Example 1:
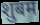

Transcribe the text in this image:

शुबम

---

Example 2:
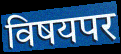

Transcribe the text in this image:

विषयपर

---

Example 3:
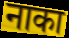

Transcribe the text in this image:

नाका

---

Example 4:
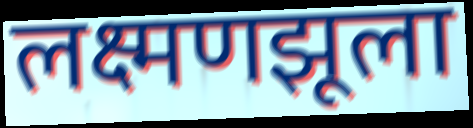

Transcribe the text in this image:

लक्ष्मणझूला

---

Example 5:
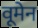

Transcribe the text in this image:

वूमेन